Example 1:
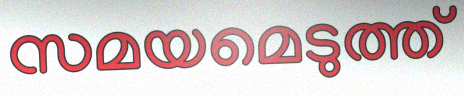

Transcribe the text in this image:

സമയമെടുത്ത്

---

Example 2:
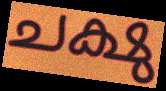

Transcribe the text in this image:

ചക്ഷു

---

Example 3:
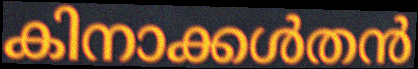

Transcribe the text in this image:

കിനാക്കൾതൻ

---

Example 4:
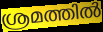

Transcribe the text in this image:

ശ്രമത്തിൽ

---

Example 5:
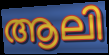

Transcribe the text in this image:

ആലി